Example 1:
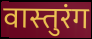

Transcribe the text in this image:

वास्तुरंग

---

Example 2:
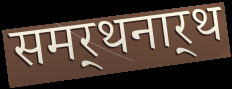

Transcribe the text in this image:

समर्थनार्थ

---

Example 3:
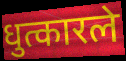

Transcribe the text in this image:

धुत्कारले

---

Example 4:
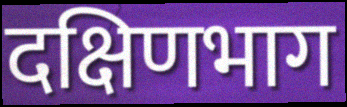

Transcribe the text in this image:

दक्षिणभाग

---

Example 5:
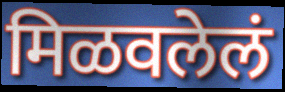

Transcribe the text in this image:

मिळवलेलं